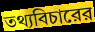
তথ্যবিচারের